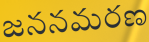
జననమరణ